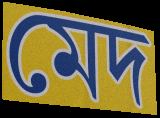
মেদ